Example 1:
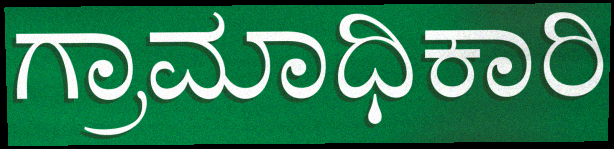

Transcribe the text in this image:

ಗ್ರಾಮಾಧಿಕಾರಿ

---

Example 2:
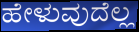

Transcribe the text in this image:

ಹೇಳುವುದೆಲ್ಲ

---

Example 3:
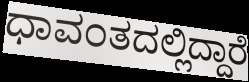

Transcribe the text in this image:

ಧಾವಂತದಲ್ಲಿದ್ದಾರೆ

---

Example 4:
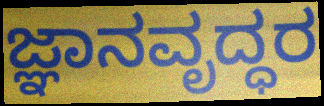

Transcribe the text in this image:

ಜ್ಞಾನವೃದ್ಧರ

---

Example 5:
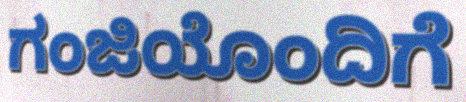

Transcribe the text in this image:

ಗಂಜಿಯೊಂದಿಗೆ